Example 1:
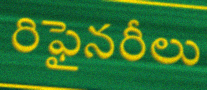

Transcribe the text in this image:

రిఫైనరీలు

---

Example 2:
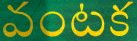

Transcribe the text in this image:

వంటక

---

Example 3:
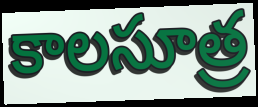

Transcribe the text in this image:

కాలసూత్ర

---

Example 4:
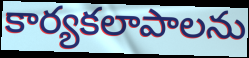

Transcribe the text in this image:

కార్యకలాపాలను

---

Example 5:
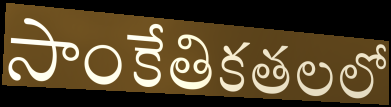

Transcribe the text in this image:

సాంకేతికతలలో